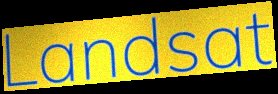
Landsat